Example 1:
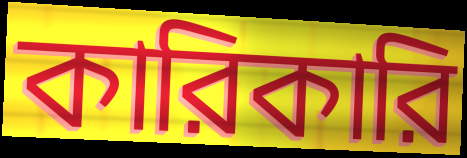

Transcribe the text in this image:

কারিকারি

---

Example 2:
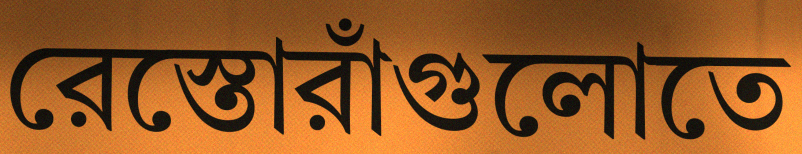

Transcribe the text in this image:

রেস্তোরাঁগুলোতে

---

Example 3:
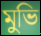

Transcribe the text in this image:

মুভি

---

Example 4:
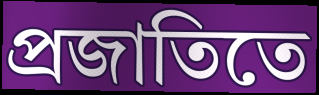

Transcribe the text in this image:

প্রজাতিতে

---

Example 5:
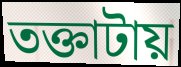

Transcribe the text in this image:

তক্তাটায়